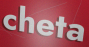
cheta